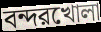
বন্দরখোলা